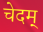
चेदम्